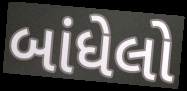
બાંધેલો